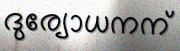
ദുര്യോധനന്